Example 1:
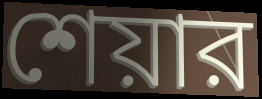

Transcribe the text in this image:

শেয়ার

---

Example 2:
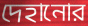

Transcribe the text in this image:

দেহানোর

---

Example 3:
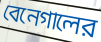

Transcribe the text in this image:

বেনেগালের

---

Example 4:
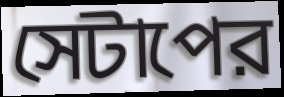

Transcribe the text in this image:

সেটাপের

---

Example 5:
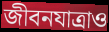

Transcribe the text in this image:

জীবনযাত্রাও